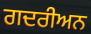
ਗਦਰੀਅਨ